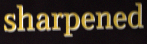
sharpened